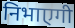
निभाएगी